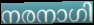
നരനാഗി